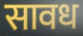
सावध